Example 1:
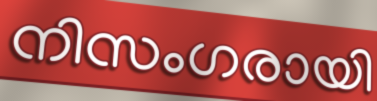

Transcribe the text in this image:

നിസംഗരായി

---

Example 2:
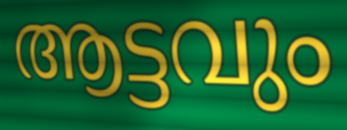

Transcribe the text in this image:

ആട്ടവും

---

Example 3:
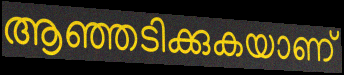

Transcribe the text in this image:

ആഞ്ഞടിക്കുകയാണ്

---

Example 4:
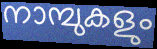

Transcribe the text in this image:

നാമ്പുകളും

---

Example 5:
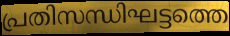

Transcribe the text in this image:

പ്രതിസന്ധിഘട്ടത്തെ